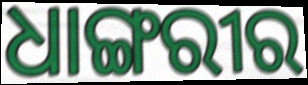
ଧାଙ୍ଗରୀର